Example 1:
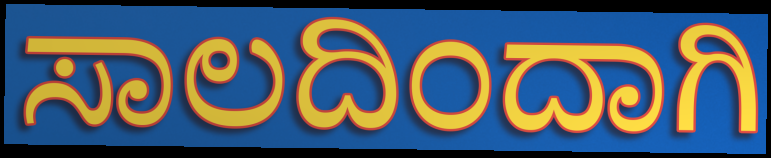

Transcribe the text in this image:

ಸಾಲದಿಂದಾಗಿ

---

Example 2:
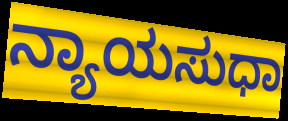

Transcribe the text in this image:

ನ್ಯಾಯಸುಧಾ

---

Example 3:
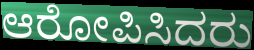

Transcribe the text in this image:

ಆರೋಪಿಸಿದರು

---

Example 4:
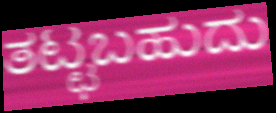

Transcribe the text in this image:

ತಟ್ಟಬಹುದು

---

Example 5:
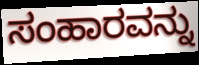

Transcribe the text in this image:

ಸಂಹಾರವನ್ನು